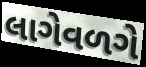
લાગેવળગે